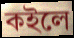
কইলে